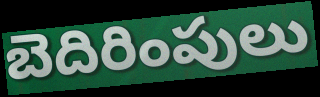
బెదిరింపులు